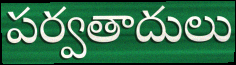
పర్వతాదులు